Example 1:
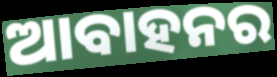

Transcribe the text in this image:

ଆବାହନର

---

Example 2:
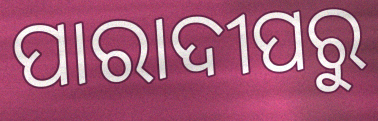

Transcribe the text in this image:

ପାରାଦୀପରୁ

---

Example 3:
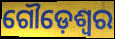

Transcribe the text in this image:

ଗୌଡ଼େଶ୍ୱର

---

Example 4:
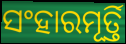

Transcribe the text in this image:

ସଂହାରମୂର୍ତ୍ତି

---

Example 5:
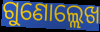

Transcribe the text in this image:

ଗୁଣୋଲ୍ଲେଖ